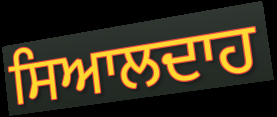
ਸਿਆਲਦਾਹ